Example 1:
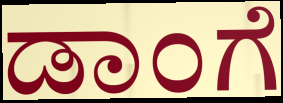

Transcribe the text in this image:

ಡಾಂಗೆ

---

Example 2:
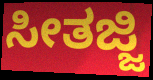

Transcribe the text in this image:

ಸೀತಜ್ಜಿ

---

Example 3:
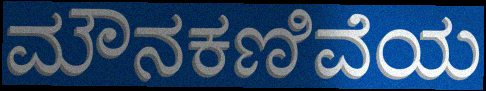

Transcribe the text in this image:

ಮೌನಕಣಿವೆಯ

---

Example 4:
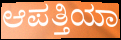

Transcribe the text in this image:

ಆಪತ್ತಿಯಾ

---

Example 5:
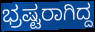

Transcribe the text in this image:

ಭ್ರಷ್ಟರಾಗಿದ್ದ